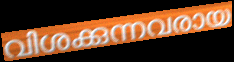
വിശക്കുന്നവരായ